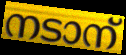
നടാന്